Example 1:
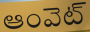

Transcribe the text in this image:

ఆంవెట్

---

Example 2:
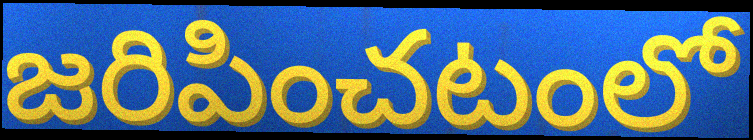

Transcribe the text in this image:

జరిపించటంలో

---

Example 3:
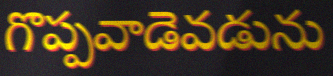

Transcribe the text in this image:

గొప్పవాడెవడును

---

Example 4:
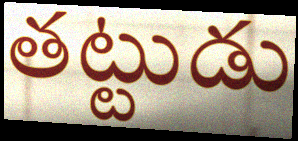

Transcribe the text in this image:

తట్టుడు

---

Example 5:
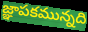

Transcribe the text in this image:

జ్ఞాపకమున్నది